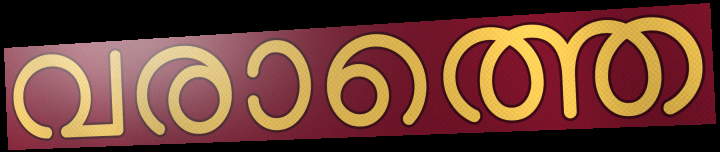
വരാത്തെ